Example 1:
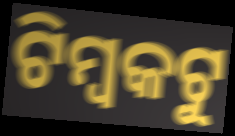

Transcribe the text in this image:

ଟିମ୍ବକଟୁ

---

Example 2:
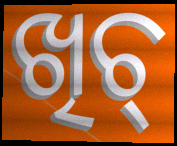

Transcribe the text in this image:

ଖିଚ୍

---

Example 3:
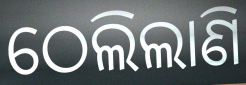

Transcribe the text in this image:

ଠେଲିଲାଣି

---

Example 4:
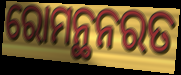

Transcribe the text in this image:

ରୋମନ୍ଥନରତ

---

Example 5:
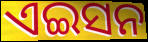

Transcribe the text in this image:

ଏଇସନ